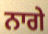
ਨਾਗੇ